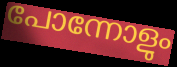
പോന്നോളും